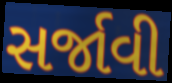
સર્જાવી